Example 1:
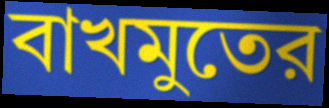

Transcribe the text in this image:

বাখমুতের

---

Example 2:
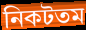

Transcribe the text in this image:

নিকটতম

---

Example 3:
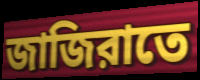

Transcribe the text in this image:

জাজিরাতে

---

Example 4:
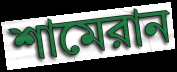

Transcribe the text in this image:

শামেরান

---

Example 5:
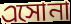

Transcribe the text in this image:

এসোনা